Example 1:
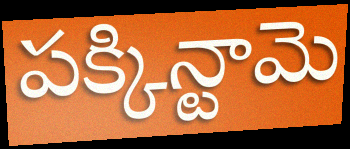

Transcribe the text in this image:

పక్కిన్టామె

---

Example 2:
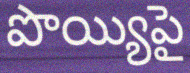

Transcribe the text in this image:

పొయ్యిపై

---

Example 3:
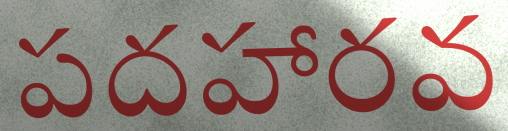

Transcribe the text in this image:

పదహారవ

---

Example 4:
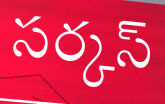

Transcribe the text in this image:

సర్కస్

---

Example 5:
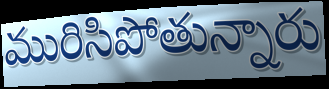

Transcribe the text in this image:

మురిసిపోతున్నారు